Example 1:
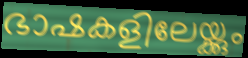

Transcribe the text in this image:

ഭാഷകളിലേയ്ക്കും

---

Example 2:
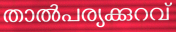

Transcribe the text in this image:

താൽപര്യക്കുറവ്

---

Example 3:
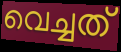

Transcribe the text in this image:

വെച്ചത്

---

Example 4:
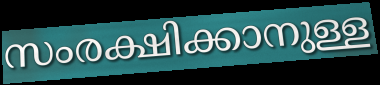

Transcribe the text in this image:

സംരക്ഷിക്കാനുള്ള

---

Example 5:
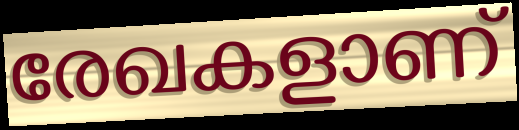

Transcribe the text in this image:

രേഖകളാണ്